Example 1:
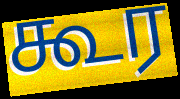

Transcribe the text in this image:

கூர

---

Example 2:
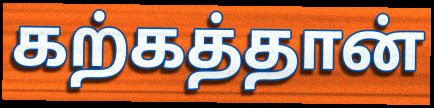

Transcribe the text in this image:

கற்கத்தான்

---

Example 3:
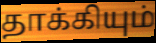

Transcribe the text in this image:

தாக்கியும்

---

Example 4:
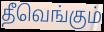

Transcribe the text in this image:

தீவெங்கும்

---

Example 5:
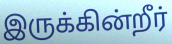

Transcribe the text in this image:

இருக்கின்றீர்